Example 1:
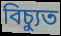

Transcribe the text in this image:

বিচ্যুত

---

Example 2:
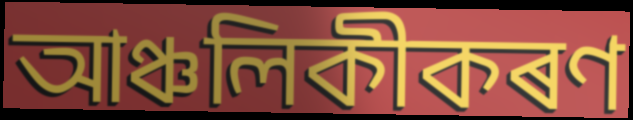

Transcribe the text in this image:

আঞ্চলিকীকৰণ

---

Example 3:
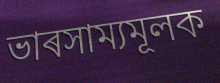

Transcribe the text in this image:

ভাৰসাম্যমূলক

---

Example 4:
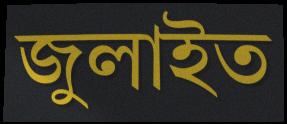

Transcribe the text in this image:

জুলাইত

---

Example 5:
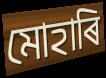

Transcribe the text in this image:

মোহাৰি